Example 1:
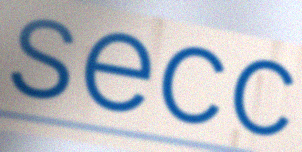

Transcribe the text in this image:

secc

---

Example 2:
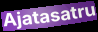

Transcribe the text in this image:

Ajatasatru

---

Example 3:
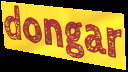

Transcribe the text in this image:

dongar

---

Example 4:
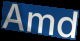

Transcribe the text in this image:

Amd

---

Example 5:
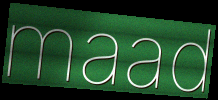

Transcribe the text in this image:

maad